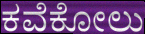
ಕವೆಕೋಲು